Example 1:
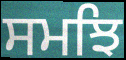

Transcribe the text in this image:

ਸਮਝਿ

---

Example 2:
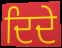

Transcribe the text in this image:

ਦਿਦੇ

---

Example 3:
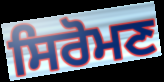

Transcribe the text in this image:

ਸਿਰੋਮਣ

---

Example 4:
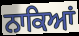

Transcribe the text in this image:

ਨਾਕਿਆਂ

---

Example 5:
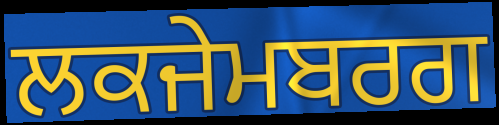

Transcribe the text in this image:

ਲਕਜੇਮਬਰਗ